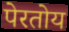
पेरतोय